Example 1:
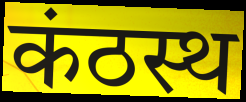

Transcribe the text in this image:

कंठस्थ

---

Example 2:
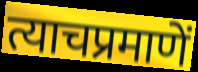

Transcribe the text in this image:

त्याचप्रमाणें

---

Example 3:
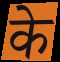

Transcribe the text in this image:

के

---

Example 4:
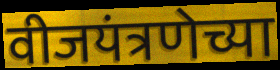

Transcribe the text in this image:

वीजयंत्रणेच्या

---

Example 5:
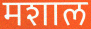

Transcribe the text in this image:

मशाल